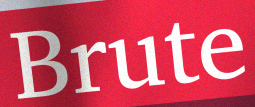
Brute